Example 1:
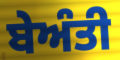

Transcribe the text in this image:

ਬੇਅੰਤੀ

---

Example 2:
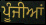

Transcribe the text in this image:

ਪੂੰਜੀਆਂ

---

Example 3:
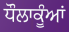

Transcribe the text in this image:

ਧੌਲਾਕੂੰਆਂ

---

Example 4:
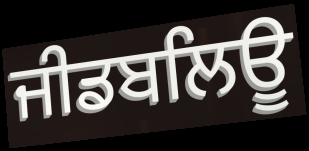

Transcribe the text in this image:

ਜੀਡਬਲਿਊ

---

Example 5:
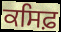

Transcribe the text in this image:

ਕਸਿਫ਼